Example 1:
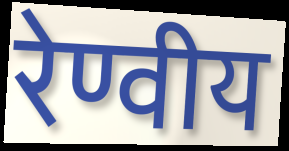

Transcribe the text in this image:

रेण्वीय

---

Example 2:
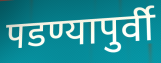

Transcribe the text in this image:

पडण्यापुर्वी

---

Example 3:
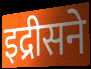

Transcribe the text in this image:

इद्रीसने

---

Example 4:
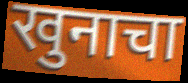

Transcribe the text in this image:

खुनाचा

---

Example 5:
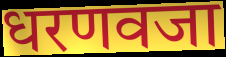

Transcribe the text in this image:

धरणवजा